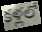
కళ్లలో